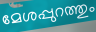
മേശപ്പുറത്തും